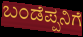
ಬಂಡೆಪ್ಪನಿಗೆ